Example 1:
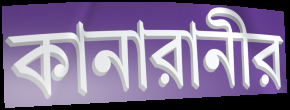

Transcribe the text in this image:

কানারানীর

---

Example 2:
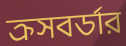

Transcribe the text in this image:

ক্রসবর্ডার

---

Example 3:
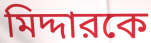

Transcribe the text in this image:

মিদ্দারকে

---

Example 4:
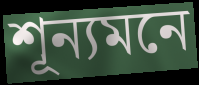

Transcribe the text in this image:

শূন্যমনে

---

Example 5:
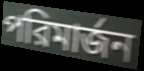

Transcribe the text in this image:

পরিমার্জন